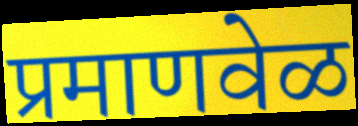
प्रमाणवेळ